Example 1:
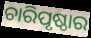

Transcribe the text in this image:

ଚାରିପୃଷ୍ଠାର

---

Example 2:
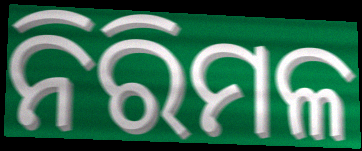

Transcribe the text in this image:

ନିରିମଳ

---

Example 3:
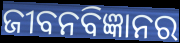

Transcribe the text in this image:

ଜୀବନବିଜ୍ଞାନର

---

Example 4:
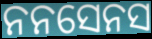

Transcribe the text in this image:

ନନସେନସ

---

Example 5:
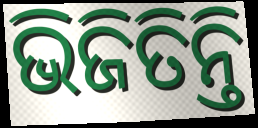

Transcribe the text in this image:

ଭିଜିତିନ୍ତି